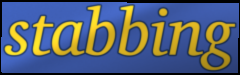
stabbing